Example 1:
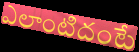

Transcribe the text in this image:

ఎలాంటిదంటే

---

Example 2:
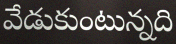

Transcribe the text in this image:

వేడుకుంటున్నది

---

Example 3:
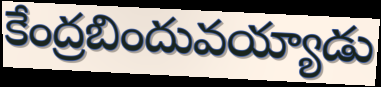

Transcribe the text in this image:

కేంద్రబిందువయ్యాడు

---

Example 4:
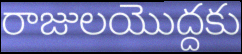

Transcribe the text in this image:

రాజులయొద్దకు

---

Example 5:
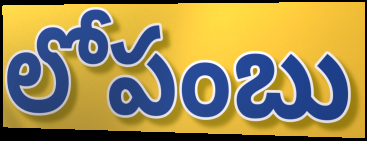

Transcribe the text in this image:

లోపంబు